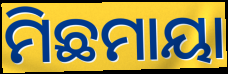
ମିଛମାୟା